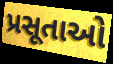
પ્રસૂતાઓ